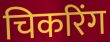
चिकरिंग